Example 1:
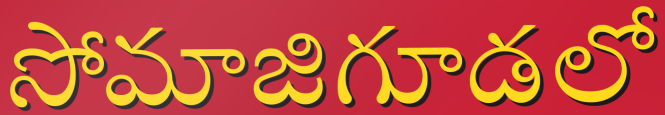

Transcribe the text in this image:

సోమాజిగూడలో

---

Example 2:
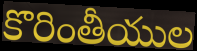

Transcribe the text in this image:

కొరింతీయుల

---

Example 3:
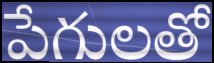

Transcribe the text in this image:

పేగులతో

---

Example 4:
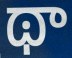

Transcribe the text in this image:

థా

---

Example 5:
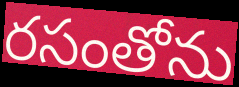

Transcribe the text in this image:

రసంతోను